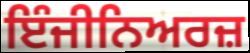
ਇੰਜੀਨਿਅਰਜ਼